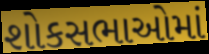
શોકસભાઓમાં